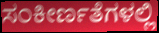
ಸಂಕೀರ್ಣತೆಗಳಲ್ಲಿ